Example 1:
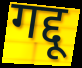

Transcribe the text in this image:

गद्दू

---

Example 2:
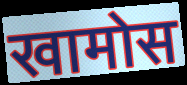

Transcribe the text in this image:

खामोस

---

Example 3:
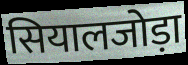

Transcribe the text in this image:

सियालजोड़ा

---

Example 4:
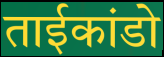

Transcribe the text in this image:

ताईकांडो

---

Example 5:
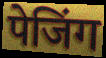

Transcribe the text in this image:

पेजिंग